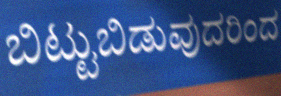
ಬಿಟ್ಟುಬಿಡುವುದರಿಂದ